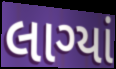
લાગ્યાં